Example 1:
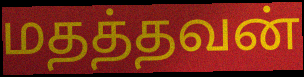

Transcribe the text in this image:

மதத்தவன்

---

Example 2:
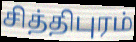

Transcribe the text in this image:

சித்திபுரம்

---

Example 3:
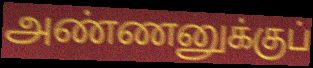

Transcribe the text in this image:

அண்ணனுக்குப்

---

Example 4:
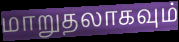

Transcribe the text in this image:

மாறுதலாகவும்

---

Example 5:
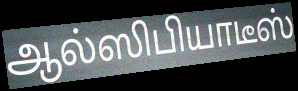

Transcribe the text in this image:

ஆல்ஸிபியாடீஸ்